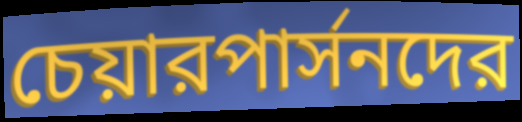
চেয়ারপার্সনদের